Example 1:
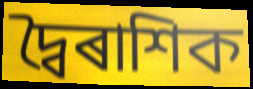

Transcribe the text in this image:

দ্বৈৰাশিক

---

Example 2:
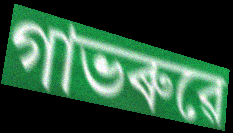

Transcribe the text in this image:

গাভৰুৱে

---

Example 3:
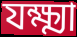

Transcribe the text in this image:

যক্ষ্মা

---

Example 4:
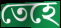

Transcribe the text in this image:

তেহে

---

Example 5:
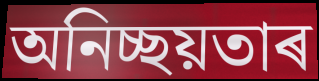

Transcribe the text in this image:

অনিচ্ছয়তাৰ